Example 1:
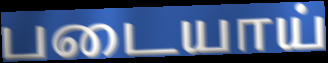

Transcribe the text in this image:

படையாய்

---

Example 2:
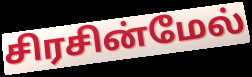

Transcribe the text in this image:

சிரசின்மேல்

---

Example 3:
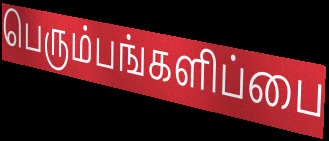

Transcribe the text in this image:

பெரும்பங்களிப்பை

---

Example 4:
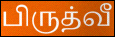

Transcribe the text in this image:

பிருத்வீ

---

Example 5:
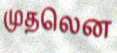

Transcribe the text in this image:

முதலென